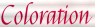
Coloration